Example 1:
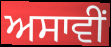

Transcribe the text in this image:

ਅਸਾਵੀਂ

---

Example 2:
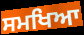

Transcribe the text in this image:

ਸਮਖਿਆ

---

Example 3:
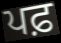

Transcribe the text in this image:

ਪਫ਼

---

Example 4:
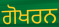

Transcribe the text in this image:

ਗੋਖਰਨ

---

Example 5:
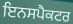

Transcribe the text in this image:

ਇਨਸਪੈਕਟਰ